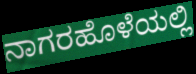
ನಾಗರಹೊಳೆಯಲ್ಲಿ